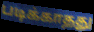
படிக்காதது